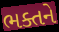
ભક્તને